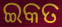
ଇକତ